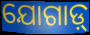
ଯୋଗାଡ଼୍